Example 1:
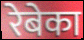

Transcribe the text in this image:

रेबेका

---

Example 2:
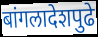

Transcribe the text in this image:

बांगलादेशपुढे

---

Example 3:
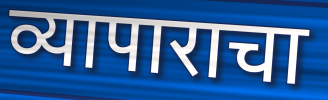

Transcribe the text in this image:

व्यापाराचा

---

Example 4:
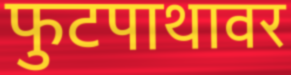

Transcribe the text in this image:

फुटपाथावर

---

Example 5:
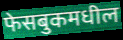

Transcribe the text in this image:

फेसबुकमधील